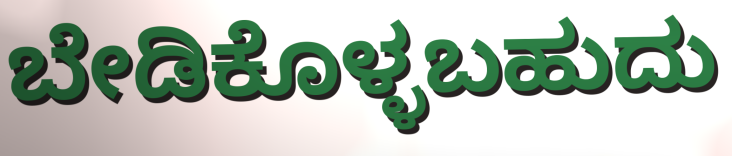
ಬೇಡಿಕೊಳ್ಳಬಹುದು